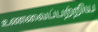
உணவைப்பற்றிய